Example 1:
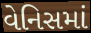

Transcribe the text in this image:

વેનિસમાં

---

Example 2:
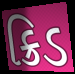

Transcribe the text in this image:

ક્રિડ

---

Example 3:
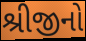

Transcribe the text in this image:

શ્રીજીનો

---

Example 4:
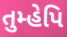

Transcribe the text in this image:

તુમ્હેપિ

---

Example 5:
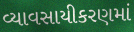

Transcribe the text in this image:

વ્યાવસાયીકરણમાં